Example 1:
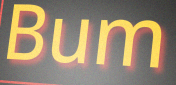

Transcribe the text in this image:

Bum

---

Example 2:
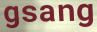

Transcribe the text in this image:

gsang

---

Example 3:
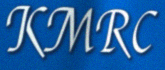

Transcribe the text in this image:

KMRC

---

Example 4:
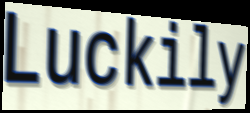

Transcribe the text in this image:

Luckily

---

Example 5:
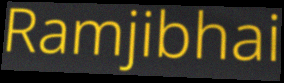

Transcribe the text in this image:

Ramjibhai